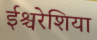
ईश्चरेशिया